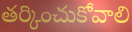
తర్కించుకోవాలి